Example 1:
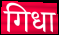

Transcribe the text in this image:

गिधा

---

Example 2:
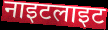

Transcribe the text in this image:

नाइटलाइट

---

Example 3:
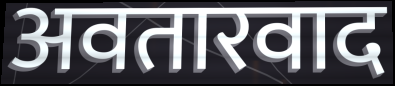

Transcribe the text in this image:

अवतारवाद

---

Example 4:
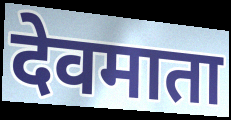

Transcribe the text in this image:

देवमाता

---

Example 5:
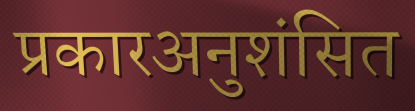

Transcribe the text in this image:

प्रकारअनुशंसित